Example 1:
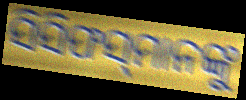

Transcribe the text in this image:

ସିସିଫସ୍‌ମାନଙ୍କୁ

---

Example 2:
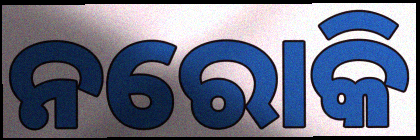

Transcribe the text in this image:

ନରୋକି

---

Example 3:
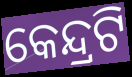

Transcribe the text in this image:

କେନ୍ଦ୍ରଟି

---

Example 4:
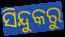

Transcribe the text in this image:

ସିନ୍ଦୁକରୁ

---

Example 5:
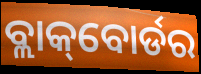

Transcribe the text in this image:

ବ୍ଲାକ୍‌ବୋର୍ଡର